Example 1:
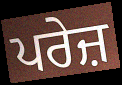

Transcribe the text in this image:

ਪਰੇਜ਼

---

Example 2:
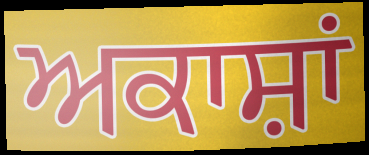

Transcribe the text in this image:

ਅਕਾਸ਼ਾਂ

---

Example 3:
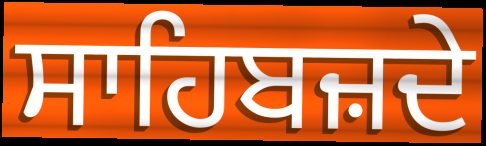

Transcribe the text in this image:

ਸਾਹਿਬਜ਼ਦੇ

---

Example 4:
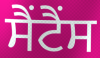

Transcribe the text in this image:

ਸੈਂਟੈਂਸ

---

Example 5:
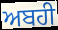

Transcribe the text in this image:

ਅਬਹੀ